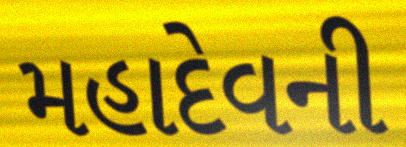
મહાદેવની